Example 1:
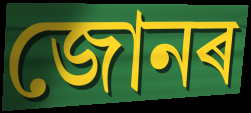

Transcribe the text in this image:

জোনৰ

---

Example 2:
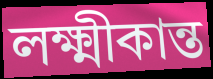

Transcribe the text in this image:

লক্ষ্মীকান্ত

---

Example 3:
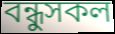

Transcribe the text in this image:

বন্ধুসকল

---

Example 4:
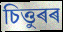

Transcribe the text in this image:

চিত্তুৰৰ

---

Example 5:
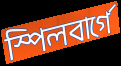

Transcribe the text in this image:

স্পিলবাৰ্গে